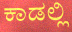
ಕಾಡಲ್ಲಿ